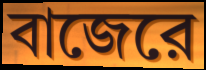
বাজেরে